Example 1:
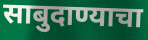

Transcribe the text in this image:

साबुदाण्याचा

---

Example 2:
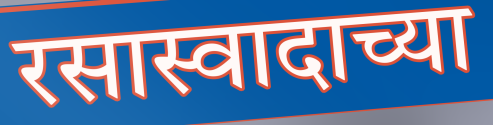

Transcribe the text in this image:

रसास्वादाच्या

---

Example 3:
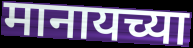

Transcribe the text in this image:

मानायच्या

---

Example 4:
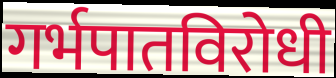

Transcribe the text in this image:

गर्भपातविरोधी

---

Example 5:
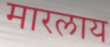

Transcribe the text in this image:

मारलाय